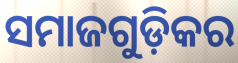
ସମାଜଗୁଡ଼ିକର